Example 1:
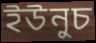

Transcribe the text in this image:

ইউনুচ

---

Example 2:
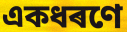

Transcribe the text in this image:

একধৰণে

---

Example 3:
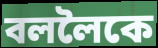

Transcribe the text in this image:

বললৈকে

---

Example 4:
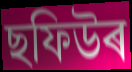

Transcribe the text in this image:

ছফিউৰ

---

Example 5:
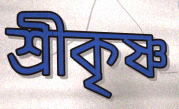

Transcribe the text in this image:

শ্ৰীকৃষ্ণ